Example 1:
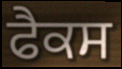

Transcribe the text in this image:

ਫੈਕਸ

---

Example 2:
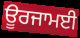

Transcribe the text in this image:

ਊਰਜਾਮਈ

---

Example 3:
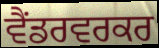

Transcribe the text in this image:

ਵੈਂਡਰਵਰਕਰ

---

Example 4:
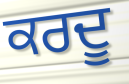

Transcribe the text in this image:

ਕਰਦੂ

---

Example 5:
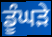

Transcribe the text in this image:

ਡੂੰਘੜੇ